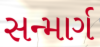
સન્માર્ગ